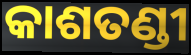
କାଶତଣ୍ଡୀ